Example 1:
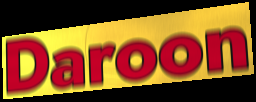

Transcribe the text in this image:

Daroon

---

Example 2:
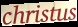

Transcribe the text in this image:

christus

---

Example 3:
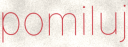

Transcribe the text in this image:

pomiluj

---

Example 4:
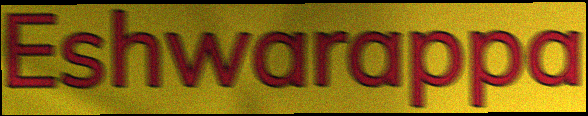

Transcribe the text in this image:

Eshwarappa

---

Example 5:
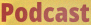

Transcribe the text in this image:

Podcast